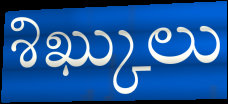
శిఖ్కులు